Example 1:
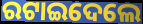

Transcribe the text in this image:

ରଟାଇଦେଲେ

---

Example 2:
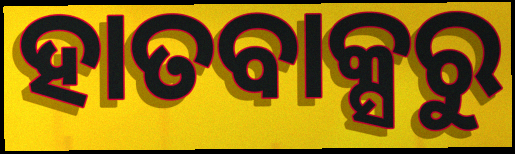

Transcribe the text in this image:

ହାତବାକ୍ସରୁ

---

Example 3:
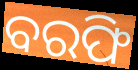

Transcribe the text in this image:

ବରଫି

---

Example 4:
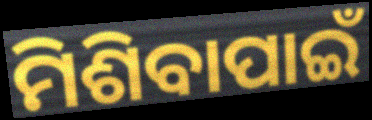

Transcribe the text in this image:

ମିଶିବାପାଇଁ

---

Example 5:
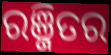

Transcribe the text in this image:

ରଞ୍ଜିତର